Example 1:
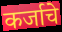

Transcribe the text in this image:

कर्जाचे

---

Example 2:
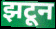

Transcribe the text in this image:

झटून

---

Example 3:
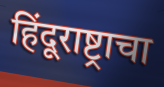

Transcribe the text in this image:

हिंदूराष्ट्राचा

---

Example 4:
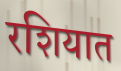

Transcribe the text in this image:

रशियात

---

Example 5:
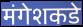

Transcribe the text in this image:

मंगेशकडे